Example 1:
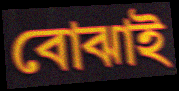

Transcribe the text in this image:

বোঝাই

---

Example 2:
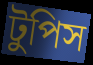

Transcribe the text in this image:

টুপিস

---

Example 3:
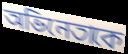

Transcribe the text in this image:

অভিনেতাকে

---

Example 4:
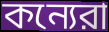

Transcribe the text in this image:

কন্যেরা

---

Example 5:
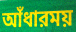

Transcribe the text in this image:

আঁধারময়